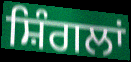
ਸ਼ਿੰਗਲਾਂ